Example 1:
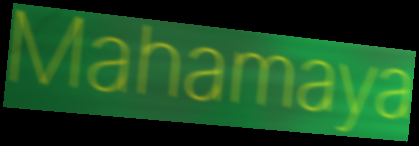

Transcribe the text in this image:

Mahamaya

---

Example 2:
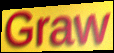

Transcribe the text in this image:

Graw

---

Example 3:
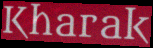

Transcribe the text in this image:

Kharak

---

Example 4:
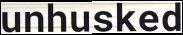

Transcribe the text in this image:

unhusked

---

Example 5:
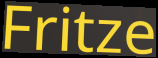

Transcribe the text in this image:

Fritze